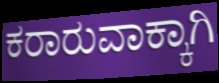
ಕರಾರುವಾಕ್ಕಾಗಿ